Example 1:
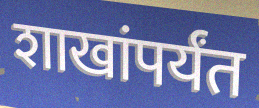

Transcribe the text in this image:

शाखांपर्यंत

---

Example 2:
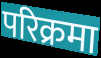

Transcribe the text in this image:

परिक्रमा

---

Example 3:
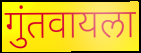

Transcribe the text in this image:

गुंतवायला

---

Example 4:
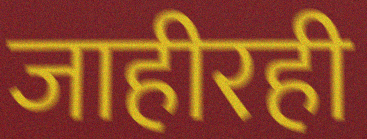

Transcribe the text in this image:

जाहीरही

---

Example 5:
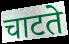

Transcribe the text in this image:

चाटते